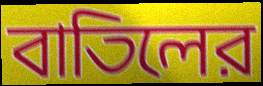
বাতিলের